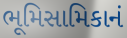
ભૂમિસામિકાનં